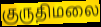
குருதிமலை